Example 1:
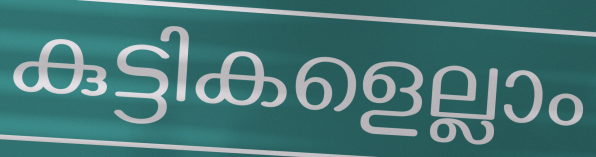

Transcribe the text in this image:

കുട്ടികളെല്ലാം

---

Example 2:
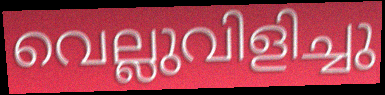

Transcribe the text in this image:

വെല്ലുവിളിച്ചു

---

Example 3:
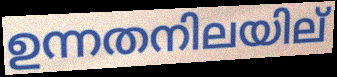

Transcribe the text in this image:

ഉന്നതനിലയില്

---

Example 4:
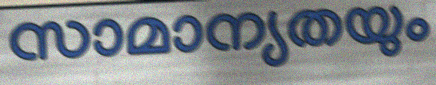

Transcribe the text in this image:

സാമാന്യതയും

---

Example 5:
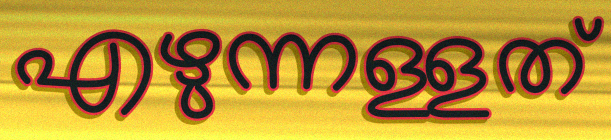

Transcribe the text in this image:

എഴുന്നള്ളത്